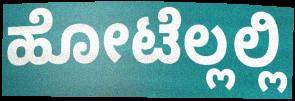
ಹೋಟೆಲ್ಲಲ್ಲಿ